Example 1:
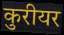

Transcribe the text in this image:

कुरीयर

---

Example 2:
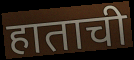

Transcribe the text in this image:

हाताची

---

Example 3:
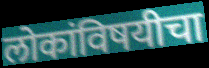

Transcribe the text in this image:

लोकांविषयीचा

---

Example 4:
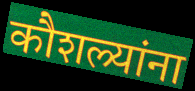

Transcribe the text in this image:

कौशल्यांना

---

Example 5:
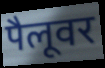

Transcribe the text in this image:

पैलूवर